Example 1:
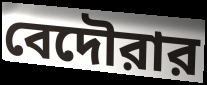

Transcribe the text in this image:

বেদৌরার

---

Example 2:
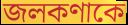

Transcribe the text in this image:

জলকণাকে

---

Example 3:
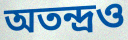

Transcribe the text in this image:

অতন্দ্রও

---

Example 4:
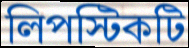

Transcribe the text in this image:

লিপস্টিকটি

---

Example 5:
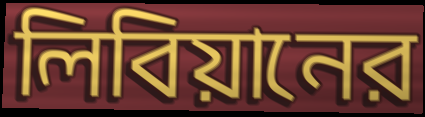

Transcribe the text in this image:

লিবিয়ানের